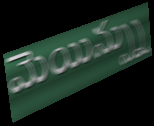
మెయిన్స్ను